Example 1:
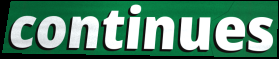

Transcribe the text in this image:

continues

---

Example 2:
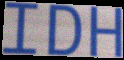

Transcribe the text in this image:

IDH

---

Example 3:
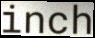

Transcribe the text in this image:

inch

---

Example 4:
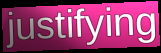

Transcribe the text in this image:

justifying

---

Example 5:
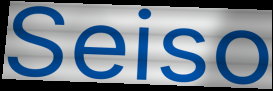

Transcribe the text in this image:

Seiso